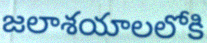
జలాశయాలలోకి